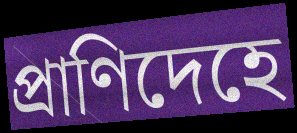
প্রাণিদেহে